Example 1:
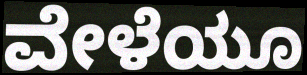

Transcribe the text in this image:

ವೇಳೆಯೂ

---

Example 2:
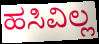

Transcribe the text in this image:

ಹಸಿವಿಲ್ಲ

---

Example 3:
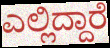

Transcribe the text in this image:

ಎಲ್ಲಿದ್ದಾರೆ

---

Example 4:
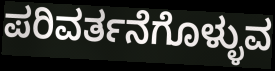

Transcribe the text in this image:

ಪರಿವರ್ತನೆಗೊಳ್ಳುವ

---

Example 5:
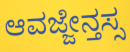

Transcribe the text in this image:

ಆವಜ್ಜೇನ್ತಸ್ಸ